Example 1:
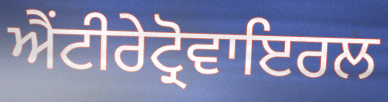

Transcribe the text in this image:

ਐਂਟੀਰੇਟ੍ਰੋਵਾਇਰਲ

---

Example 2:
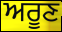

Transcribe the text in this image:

ਅਰੂਣ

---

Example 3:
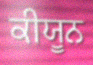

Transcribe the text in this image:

ਕੀਯੂਨ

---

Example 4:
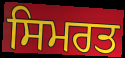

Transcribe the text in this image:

ਸਿਮਰਤ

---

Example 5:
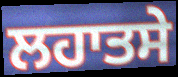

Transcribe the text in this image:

ਲਹਾਤਸੇ